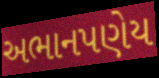
અભાનપણેય